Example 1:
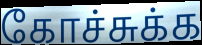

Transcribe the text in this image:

கோச்சுக்க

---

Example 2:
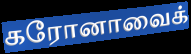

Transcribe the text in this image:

கரோனாவைக்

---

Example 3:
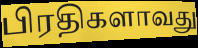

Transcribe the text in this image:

பிரதிகளாவது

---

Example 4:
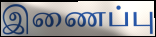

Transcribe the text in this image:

இணைப்பு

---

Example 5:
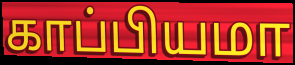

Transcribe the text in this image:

காப்பியமா